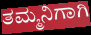
ತಮ್ಮನಿಗಾಗಿ